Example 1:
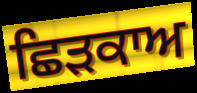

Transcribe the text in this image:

ਛਿੜਕਾਅ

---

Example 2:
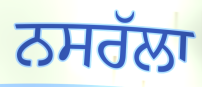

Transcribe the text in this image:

ਨਸਰੱਲਾ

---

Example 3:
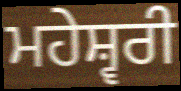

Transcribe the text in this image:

ਮਹੇਸ਼੍ਵਰੀ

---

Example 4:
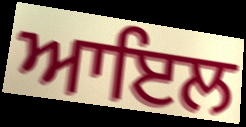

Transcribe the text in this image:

ਆਇਲ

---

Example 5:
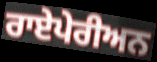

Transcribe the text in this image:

ਰਾਏਪੇਰੀਅਨ